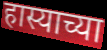
हास्याच्या